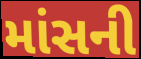
માંસની